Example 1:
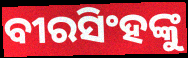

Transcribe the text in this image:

ବୀରସିଂହଙ୍କୁ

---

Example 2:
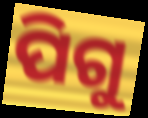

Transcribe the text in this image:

ପିଗୁ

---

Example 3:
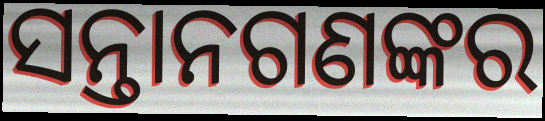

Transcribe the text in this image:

ସନ୍ତାନଗଣଙ୍କର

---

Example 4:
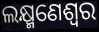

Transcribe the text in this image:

ଲକ୍ଷ୍ମଣେଶ୍ୱର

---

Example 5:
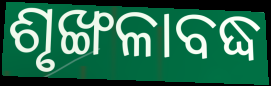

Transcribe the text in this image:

ଶୃଙ୍ଖଳାବଦ୍ଧ